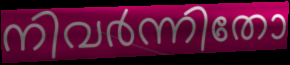
നിവർന്നിതോ